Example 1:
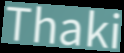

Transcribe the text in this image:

Thaki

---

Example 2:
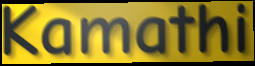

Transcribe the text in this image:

Kamathi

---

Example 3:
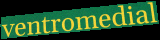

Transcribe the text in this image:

ventromedial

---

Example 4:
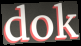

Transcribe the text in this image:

dok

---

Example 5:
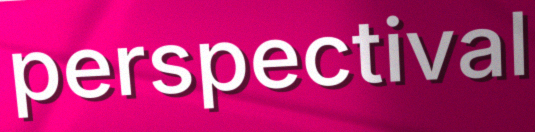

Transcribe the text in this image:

perspectival